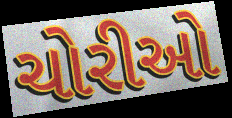
ચોરીઓ